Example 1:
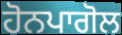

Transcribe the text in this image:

ਹੋਨਪਾਗੋਲ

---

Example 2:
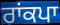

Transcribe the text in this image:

ਰਾਂਕਪਾ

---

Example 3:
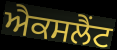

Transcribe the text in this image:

ਐਕਸਲੈਂਟ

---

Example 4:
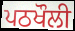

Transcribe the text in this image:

ਪਠਖੌਲੀ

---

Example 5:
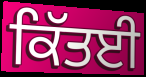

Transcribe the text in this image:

ਕਿੱਤਈ